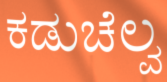
ಕಡುಚೆಲ್ವ